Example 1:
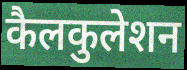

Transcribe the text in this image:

कैलकुलेशन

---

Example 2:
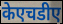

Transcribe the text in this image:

केएचडीए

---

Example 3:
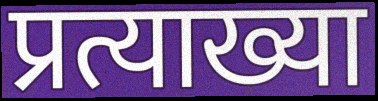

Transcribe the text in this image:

प्रत्याख्या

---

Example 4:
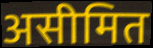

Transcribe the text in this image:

असीमित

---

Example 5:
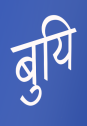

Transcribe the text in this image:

बुयि